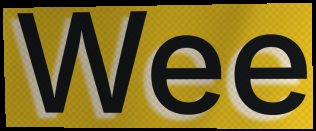
Wee